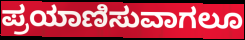
ಪ್ರಯಾಣಿಸುವಾಗಲೂ